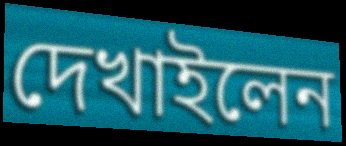
দেখাইলেন